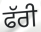
ਫੱਰੀ